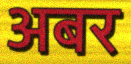
अबर